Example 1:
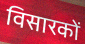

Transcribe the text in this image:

विसारकों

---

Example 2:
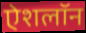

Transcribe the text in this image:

ऐशलॉन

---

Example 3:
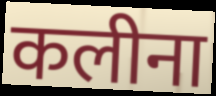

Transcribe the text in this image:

कलीना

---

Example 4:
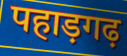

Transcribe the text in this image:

पहाड़गढ़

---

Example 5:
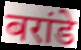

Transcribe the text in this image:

बरांडे